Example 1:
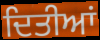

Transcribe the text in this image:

ਦਿਤੀਆਂ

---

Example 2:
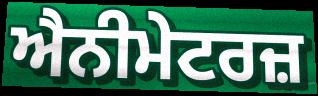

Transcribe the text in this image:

ਐਨੀਮੇਟਰਜ਼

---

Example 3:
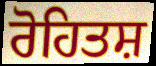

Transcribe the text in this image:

ਰੋਹਿਤਸ਼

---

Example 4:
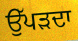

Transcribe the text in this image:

ਉੱਪੜਦਾ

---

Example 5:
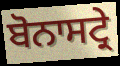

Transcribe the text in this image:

ਬੋਨਾਸਟ੍ਰੇ